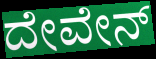
ದೇವೇನ್